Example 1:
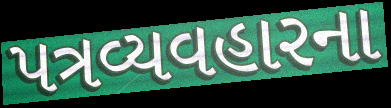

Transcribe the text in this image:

પત્રવ્યવહારના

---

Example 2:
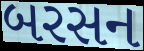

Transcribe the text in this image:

બરસન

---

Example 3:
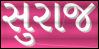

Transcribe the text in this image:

સુરાજ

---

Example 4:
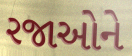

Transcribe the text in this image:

રજાઓને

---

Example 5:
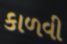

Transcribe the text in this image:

કાળવી